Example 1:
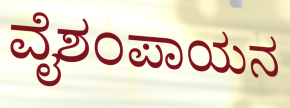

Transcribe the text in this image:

ವೈಶಂಪಾಯನ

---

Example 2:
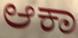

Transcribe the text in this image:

ಆಕಾ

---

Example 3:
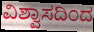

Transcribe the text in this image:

ವಿಶ್ವಾಸದಿಂದ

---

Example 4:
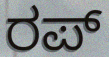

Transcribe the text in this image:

ರಪ್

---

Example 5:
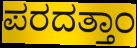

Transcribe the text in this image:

ಪರದತ್ತಾಂ